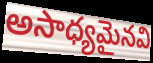
అసాధ్యమైనవి